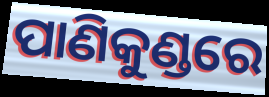
ପାଣିକୁଣ୍ଡରେ